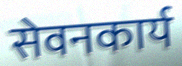
सेवनकार्य